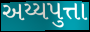
અય્યપુત્તા